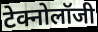
टेक्नोलॉजी